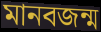
মানবজন্ম